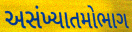
અસંખ્યાતમોભાગ